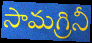
సామగ్రినీ